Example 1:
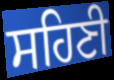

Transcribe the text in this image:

ਸਹਿਣੀ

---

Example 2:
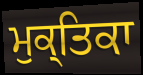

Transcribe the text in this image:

ਮੁਕ੍ਤਿਕਾ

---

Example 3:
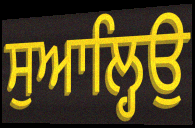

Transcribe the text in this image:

ਸੁਆਲ੍ਹ੍ਹਿਉ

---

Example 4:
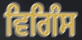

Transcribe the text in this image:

ਵਿਗਿੰਸ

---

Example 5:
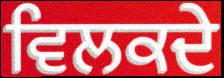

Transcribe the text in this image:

ਵਿਲਕਦੇ